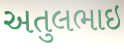
અતુલભાઇ